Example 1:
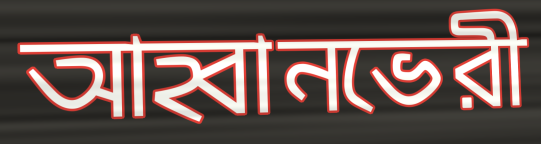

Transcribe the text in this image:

আহ্বানভেরী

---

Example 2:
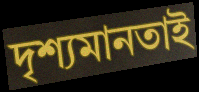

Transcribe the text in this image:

দৃশ্যমানতাই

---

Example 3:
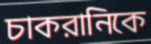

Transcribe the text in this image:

চাকরানিকে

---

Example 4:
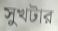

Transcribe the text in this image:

সুখটার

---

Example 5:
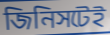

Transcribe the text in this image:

জিনিসটেই